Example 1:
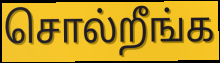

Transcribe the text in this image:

சொல்றீங்க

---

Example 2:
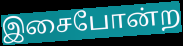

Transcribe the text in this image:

இசைபோன்ற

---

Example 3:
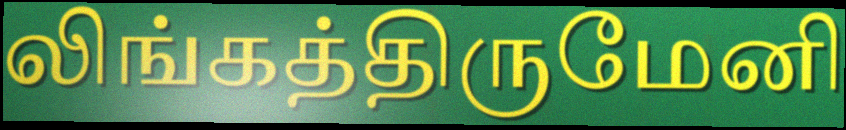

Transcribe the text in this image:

லிங்கத்திருமேனி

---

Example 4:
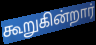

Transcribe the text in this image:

கூறுகின்றார்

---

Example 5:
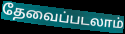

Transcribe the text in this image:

தேவைப்படலாம்